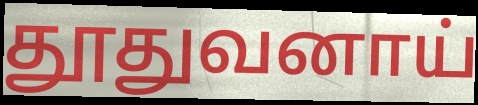
தூதுவனாய்